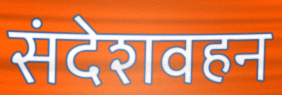
संदेशवहन